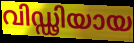
വിഡ്ഢിയായ